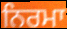
ਨਿਰਮਾ